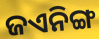
ଜଏନିଙ୍ଗ